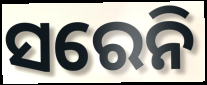
ସରେନି